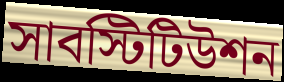
সাবস্টিটিউশন